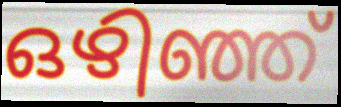
ഒഴിഞ്ഞ്